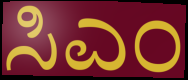
ಸಿಎಂ